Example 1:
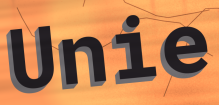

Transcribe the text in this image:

Unie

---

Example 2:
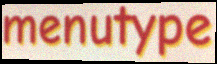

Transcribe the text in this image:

menutype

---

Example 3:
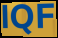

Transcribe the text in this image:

IQF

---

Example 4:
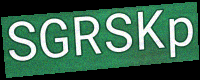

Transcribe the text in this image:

SGRSKp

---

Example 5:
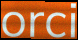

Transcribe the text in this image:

orci